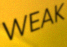
WEAK